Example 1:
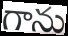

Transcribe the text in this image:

గాను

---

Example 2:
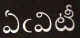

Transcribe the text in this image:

ఏఁవిటీ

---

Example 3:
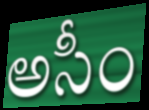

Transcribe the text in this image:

అసీం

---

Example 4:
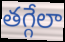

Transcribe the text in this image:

తగ్గేలా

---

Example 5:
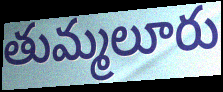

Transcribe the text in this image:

తుమ్మలూరు